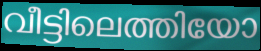
വീട്ടിലെത്തിയോ